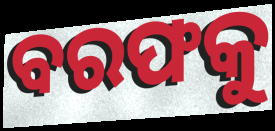
ବରଫକୁ